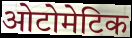
ओटोमेटिक